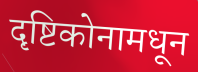
दृष्टिकोनामधून